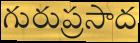
గురుప్రసాద